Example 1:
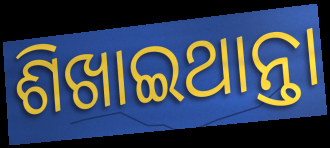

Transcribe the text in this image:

ଶିଖାଇଥାନ୍ତା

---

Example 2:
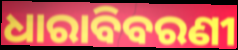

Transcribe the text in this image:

ଧାରାବିବରଣୀ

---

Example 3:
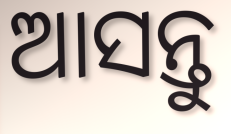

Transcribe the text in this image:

ଆସନ୍ତୁ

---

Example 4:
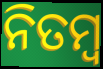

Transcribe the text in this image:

ନିତମ୍ୱ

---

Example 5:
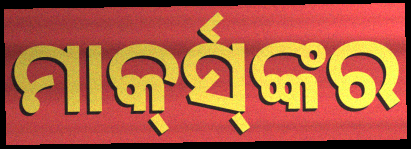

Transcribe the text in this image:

ମାର୍କ୍‍ସ୍‍ଙ୍କର